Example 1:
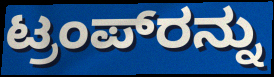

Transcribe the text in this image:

ಟ್ರಂಪ್‌ರನ್ನು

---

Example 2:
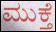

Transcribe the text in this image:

ಮುಕ್ತೆ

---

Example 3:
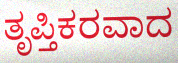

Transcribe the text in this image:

ತೃಪ್ತಿಕರವಾದ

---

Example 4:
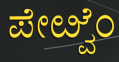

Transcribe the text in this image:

ಪೇೞ್ವೆಂ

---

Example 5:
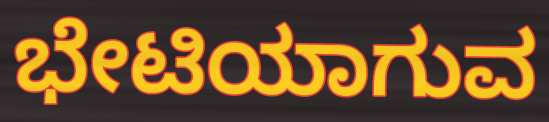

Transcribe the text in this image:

ಭೇಟಿಯಾಗುವ